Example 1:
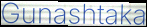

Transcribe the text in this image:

Gunashtaka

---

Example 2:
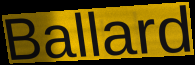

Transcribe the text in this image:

Ballard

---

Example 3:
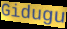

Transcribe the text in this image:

Gidugu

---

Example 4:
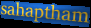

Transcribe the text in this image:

sahaptham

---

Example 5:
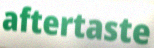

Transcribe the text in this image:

aftertaste